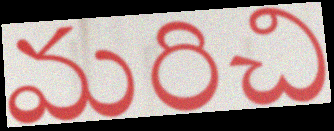
మరిచి